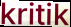
kritik